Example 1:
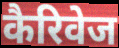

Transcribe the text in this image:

कैरिवेज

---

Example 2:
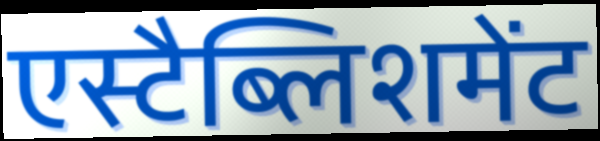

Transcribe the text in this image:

एस्टैब्लिशमेंट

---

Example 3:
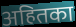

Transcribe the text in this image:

अहितका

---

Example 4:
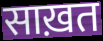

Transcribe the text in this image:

साख़त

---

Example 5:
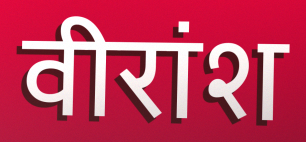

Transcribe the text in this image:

वीरांश